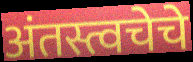
अंतस्त्वचेचे